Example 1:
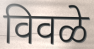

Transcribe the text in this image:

विवळे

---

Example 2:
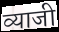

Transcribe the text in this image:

व्याजी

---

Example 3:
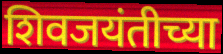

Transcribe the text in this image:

शिवजयंतीच्या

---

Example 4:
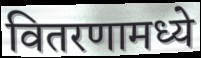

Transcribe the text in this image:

वितरणामध्ये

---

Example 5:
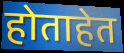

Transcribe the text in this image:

होताहेत